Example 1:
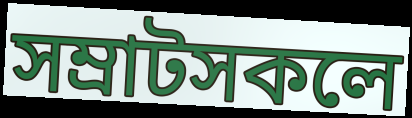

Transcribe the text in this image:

সম্ৰাটসকলে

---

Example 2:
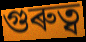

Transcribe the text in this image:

গুৰুত্ব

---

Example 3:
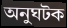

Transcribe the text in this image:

অনুঘটক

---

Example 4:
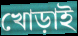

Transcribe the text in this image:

খোড়াই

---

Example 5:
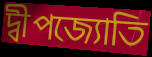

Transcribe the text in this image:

দ্বীপজ্যোতি